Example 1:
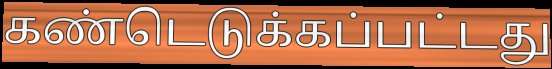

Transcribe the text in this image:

கண்டெடுக்கப்பட்டது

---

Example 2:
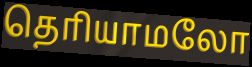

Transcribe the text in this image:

தெரியாமலோ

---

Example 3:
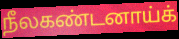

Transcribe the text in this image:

நீலகண்டனாய்க்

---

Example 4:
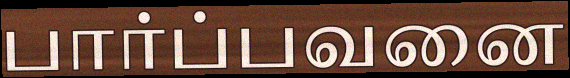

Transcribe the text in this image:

பார்ப்பவனை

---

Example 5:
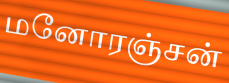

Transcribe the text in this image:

மனோரஞ்சன்